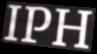
IPH